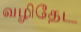
வழிதேட